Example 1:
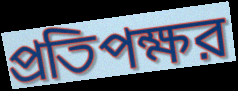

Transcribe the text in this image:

প্রতিপক্ষর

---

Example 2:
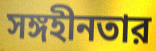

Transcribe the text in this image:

সঙ্গহীনতার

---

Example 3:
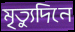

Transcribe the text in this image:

মৃত্যুদিনে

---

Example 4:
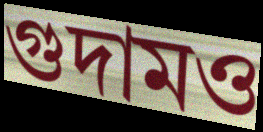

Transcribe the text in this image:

গুদামও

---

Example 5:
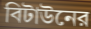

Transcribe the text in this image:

বিটাউনের